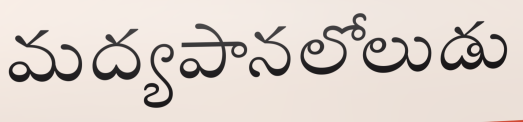
మద్యపానలోలుడు